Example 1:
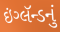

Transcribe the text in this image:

ઇંગ્લૅન્ડનું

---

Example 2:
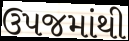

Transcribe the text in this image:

ઉપજમાંથી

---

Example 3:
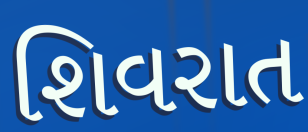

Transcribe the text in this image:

શિવરાત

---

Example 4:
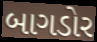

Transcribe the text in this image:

બાગડોર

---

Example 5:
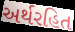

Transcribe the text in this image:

અર્થરહિત